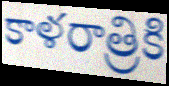
కాళరాత్రికి